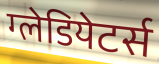
ग्लेडियेटर्स